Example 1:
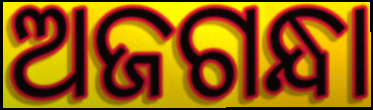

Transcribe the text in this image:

ଅଜଗନ୍ଧା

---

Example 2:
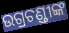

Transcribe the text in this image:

ଉଗ୍ରଚଣ୍ଡୀଙ୍କ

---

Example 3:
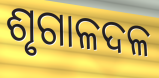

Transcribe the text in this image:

ଶୃଗାଳଦଳ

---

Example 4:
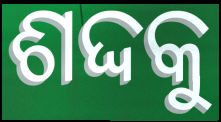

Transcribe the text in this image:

ଶଦ୍ଦକୁ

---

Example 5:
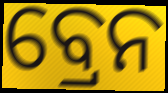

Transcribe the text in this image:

ବ୍ରେନ